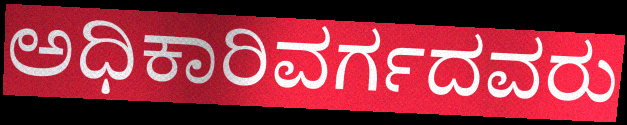
ಅಧಿಕಾರಿವರ್ಗದವರು